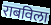
राबविला